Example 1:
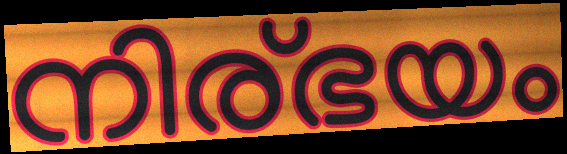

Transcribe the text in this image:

നിര്ഭയം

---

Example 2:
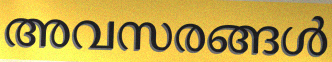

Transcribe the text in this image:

അവസരങ്ങൾ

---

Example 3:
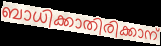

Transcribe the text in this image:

ബാധിക്കാതിരിക്കാന്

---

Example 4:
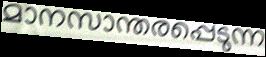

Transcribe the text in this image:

മാനസാന്തരപ്പെടുന്ന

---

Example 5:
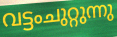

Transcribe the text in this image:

വട്ടംചുറ്റുന്നു